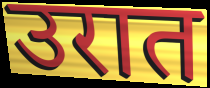
उरात